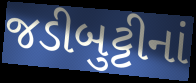
જડીબુટ્ટીનાં